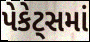
પેકેટ્સમાં